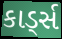
કાર્ડ્સ